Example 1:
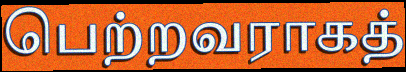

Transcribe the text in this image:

பெற்றவராகத்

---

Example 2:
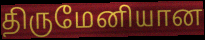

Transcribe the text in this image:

திருமேனியான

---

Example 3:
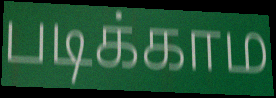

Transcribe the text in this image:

படிக்காம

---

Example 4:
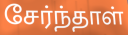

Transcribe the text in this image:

சேர்ந்தாள்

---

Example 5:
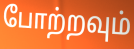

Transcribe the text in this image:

போற்றவும்